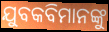
ଯୁବକବିମାନଙ୍କୁ